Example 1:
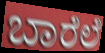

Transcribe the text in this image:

ಬಾರೆಲೆ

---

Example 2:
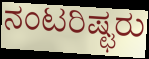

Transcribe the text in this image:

ನಂಟರಿಷ್ಟರು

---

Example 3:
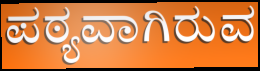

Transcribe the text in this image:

ಪಠ್ಯವಾಗಿರುವ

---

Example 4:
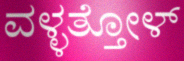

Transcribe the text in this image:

ವಳ್ಳತ್ತೋಳ್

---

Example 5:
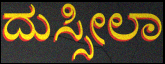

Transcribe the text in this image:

ದುಸ್ಸೀಲಾ